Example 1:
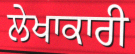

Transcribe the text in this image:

ਲੇਖਾਕਾਰੀ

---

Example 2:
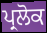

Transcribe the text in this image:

ਪ੍ਰਲੋਕ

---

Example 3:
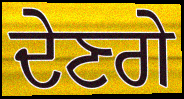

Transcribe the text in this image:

ਦੇਣਗੇ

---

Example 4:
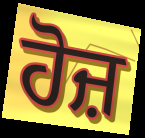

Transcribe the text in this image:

ਹੋਜ਼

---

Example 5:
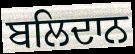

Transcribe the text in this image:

ਬਲਿਦਾਨ